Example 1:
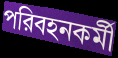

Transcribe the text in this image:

পরিবহনকর্মী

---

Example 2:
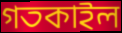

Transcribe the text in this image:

গতকাইল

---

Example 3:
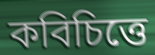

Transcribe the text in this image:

কবিচিত্তে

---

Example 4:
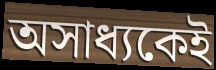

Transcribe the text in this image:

অসাধ্যকেই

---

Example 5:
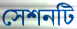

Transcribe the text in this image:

সেশনটি